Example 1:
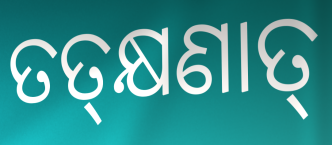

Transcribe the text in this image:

ତତ୍କ୍ଷଣାତ୍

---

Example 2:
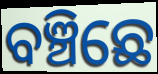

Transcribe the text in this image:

ବଞ୍ଚିଛେ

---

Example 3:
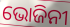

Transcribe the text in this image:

ଭୋଜିନୀ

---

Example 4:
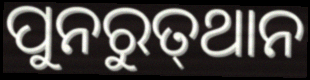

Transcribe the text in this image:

ପୁନରୁତ୍‌ଥାନ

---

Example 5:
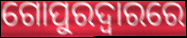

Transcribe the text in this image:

ଗୋପୁରଦ୍ବାରରେ